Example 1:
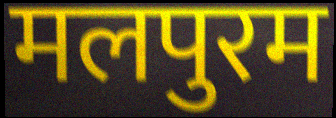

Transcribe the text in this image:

मलपुरम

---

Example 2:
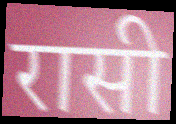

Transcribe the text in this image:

रासी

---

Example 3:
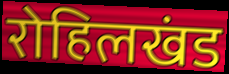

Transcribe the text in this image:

रोहिलखंड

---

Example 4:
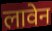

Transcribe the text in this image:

लावेन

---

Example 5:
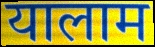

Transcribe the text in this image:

यालाम